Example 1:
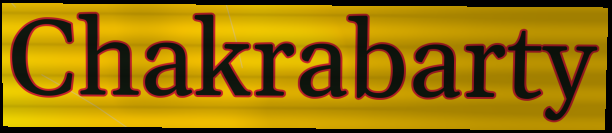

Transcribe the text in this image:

Chakrabarty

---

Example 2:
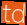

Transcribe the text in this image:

td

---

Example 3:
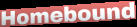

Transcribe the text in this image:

Homebound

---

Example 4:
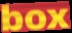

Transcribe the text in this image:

box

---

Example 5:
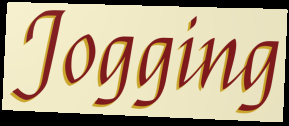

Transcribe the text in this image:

Jogging